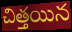
చిత్తయిన